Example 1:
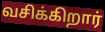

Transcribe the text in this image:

வசிக்கிறார்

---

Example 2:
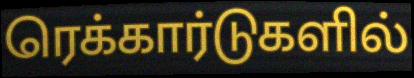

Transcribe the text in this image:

ரெக்கார்டுகளில்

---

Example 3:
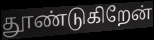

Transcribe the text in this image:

தூண்டுகிறேன்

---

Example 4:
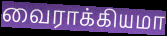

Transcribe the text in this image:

வைராக்கியமா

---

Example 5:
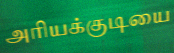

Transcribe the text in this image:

அரியக்குடியை